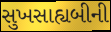
સુખસાહ્યબીની